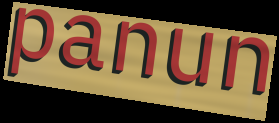
panun